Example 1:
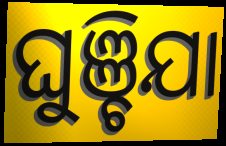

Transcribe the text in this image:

ଘୁଞ୍ଚିଯା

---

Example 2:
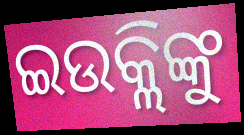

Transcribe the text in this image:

ଇଉକ୍ଲିଙ୍କୁ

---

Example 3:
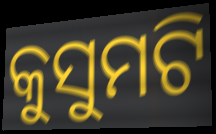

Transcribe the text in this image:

କୁସୁମଟି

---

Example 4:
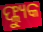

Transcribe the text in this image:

ଫ୍ଲ୍ୟୁକ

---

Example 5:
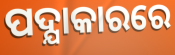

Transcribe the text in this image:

ପଦ୍ଯାକାରରେ